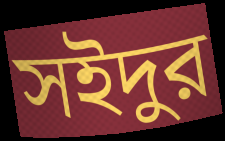
সইদুর